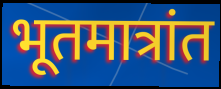
भूतमात्रांत